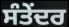
ਸੰਤੇਂਦਰ